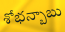
శోభన్బాబు